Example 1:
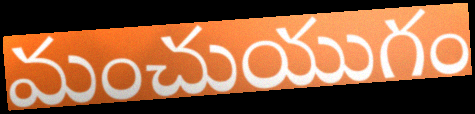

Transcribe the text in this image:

మంచుయుగం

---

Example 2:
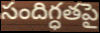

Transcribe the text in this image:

సందిగ్ధతపై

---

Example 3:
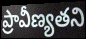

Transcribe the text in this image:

ప్రావీణ్యతని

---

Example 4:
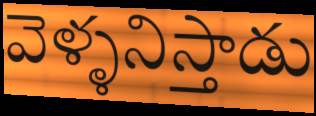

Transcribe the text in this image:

వెళ్ళనిస్తాడు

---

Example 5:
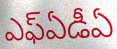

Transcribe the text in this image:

ఎఫ్ఏడీఏ